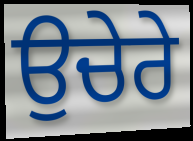
ਉਚੇਰੇ